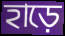
হাড়ে